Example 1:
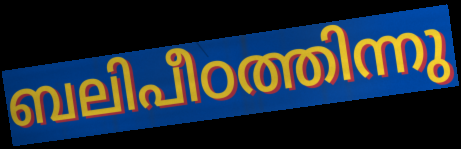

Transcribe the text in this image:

ബലിപീഠത്തിന്നു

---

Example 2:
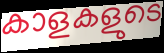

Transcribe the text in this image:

കാളകളുടെ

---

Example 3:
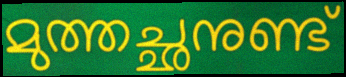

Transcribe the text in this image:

മുത്തച്ഛനുണ്ട്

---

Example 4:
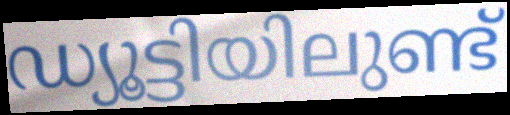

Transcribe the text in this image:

ഡ്യൂട്ടിയിലുണ്ട്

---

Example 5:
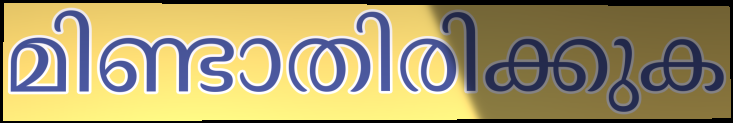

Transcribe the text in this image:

മിണ്ടാതിരിക്കുക